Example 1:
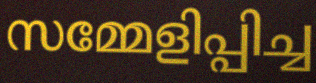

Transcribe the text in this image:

സമ്മേളിപ്പിച്ച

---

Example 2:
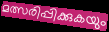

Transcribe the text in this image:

മത്സരിപ്പിക്കുകയും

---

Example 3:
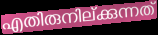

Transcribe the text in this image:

എതിരുനില്ക്കുന്നത്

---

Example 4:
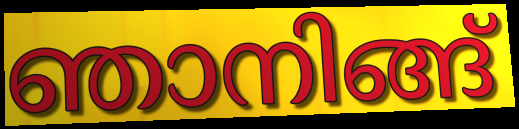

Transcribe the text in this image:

ഞാനിങ്ങ്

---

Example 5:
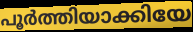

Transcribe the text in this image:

പൂർത്തിയാക്കിയേ